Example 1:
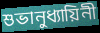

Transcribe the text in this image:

শুভানুধ্যায়িনী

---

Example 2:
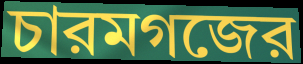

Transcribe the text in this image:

চারমগজের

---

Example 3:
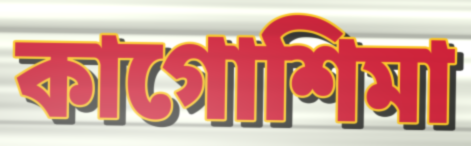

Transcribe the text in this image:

কাগোশিমা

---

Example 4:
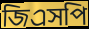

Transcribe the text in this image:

জিএসপি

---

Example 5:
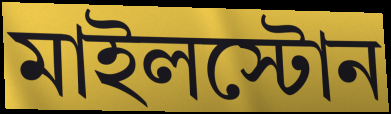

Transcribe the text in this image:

মাইলস্টোন